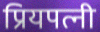
प्रियपत्नी